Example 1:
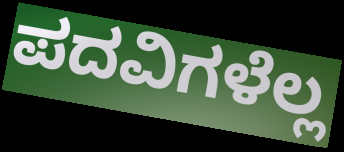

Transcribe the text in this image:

ಪದವಿಗಳೆಲ್ಲ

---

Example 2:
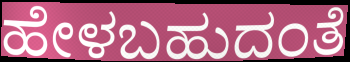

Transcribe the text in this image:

ಹೇಳಬಹುದಂತೆ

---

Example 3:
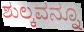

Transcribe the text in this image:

ಶುಲ್ಕವನ್ನೂ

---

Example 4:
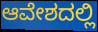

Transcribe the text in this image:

ಆವೇಶದಲ್ಲಿ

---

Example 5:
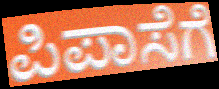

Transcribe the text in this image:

ಪಿಪಾಸೆಗೆ